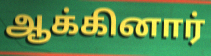
ஆக்கினார்